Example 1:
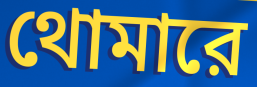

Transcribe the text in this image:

থোমারে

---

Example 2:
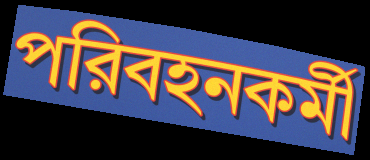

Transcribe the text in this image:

পরিবহনকর্মী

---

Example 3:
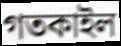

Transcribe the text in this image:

গতকাইল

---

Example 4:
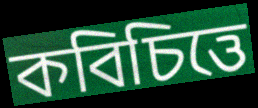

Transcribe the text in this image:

কবিচিত্তে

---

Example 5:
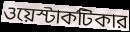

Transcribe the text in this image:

ওয়েস্টার্কটিকার